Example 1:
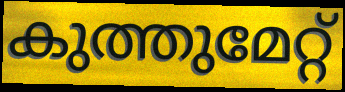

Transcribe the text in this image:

കുത്തുമേറ്റ്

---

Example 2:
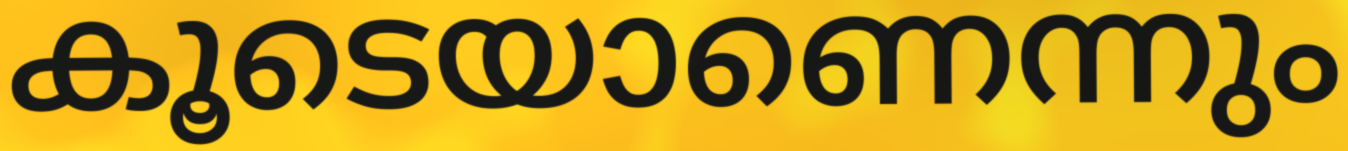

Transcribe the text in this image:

കൂടെയാണെന്നും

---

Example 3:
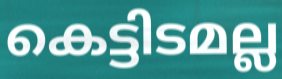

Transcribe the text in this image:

കെട്ടിടമല്ല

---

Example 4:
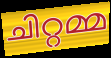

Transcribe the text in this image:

ചിറ്റമ്മ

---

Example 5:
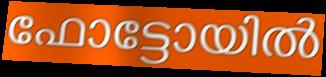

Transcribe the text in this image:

ഫോട്ടോയിൽ